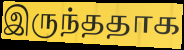
இருந்ததாக